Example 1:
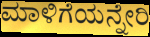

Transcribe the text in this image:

ಮಾಳಿಗೆಯನ್ನೇರಿ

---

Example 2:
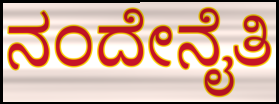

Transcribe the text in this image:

ನಂದೇನೈತಿ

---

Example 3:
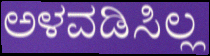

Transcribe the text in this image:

ಅಳವಡಿಸಿಲ್ಲ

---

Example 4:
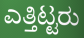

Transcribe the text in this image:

ಎತ್ತಿಟ್ಟರು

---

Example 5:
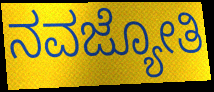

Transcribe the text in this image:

ನವಜ್ಯೋತಿ